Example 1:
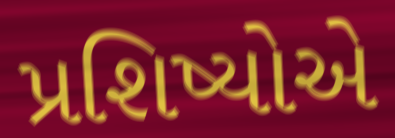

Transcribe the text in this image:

પ્રશિષ્યોએ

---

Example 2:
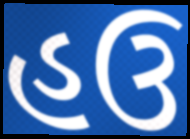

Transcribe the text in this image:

હઉ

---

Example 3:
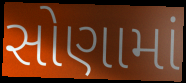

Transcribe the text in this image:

સોણામાં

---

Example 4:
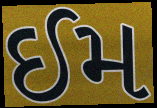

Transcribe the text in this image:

ઈમ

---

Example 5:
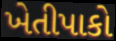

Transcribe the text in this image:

ખેતીપાકો